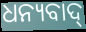
ଧନ୍ୟବାଦ୍